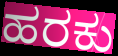
ಹರಕು